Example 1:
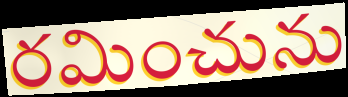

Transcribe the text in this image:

రమించును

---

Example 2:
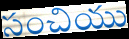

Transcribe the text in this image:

సంచియు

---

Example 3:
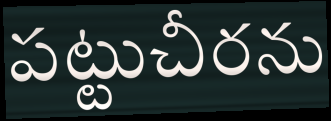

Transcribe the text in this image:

పట్టుచీరను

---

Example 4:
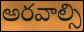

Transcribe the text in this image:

అరవాల్సి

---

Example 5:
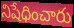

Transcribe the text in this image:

నిషేధించారు